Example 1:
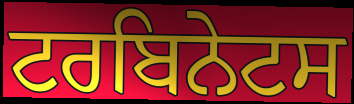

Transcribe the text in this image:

ਟਰਬਿਨੇਟਸ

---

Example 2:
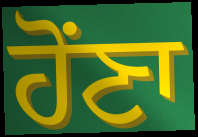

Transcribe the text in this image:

ਹੋਂਣਾ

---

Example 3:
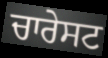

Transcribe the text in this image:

ਚਾਰੇਸਟ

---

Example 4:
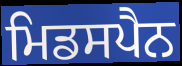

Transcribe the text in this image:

ਮਿਡਸਪੈਨ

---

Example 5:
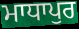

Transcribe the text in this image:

ਮਾਧਾਪੁਰ